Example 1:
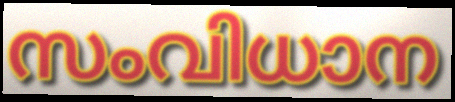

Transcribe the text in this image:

സംവിധാന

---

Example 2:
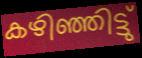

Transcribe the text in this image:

കഴിഞ്ഞിട്ടു്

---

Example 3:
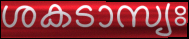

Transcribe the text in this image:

ശകടാസ്യഃ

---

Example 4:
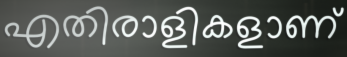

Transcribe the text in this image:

എതിരാളികളാണ്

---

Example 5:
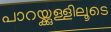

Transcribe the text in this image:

പാറയ്ക്കുള്ളിലൂടെ